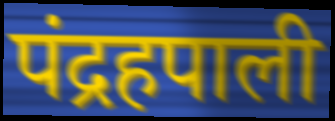
पंद्रहपाली